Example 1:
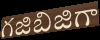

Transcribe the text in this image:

గజిబిజిగా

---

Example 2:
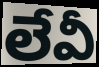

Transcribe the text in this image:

లేవీ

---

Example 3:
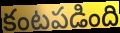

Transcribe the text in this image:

కంటపడింది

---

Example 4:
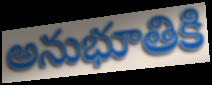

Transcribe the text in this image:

అనుభూతికి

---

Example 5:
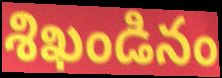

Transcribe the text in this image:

శిఖండినం